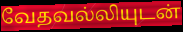
வேதவல்லியுடன்